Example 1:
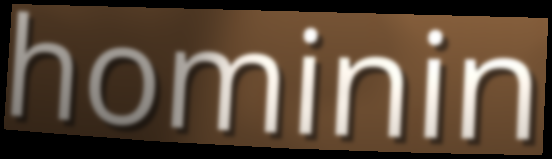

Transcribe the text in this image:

hominin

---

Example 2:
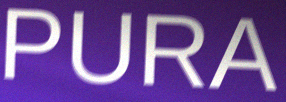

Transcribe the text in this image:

PURA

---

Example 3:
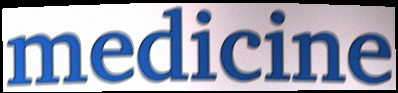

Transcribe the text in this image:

medicine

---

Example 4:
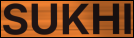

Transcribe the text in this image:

SUKHI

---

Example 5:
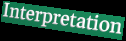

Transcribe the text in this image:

Interpretation